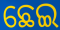
ଛେଇ